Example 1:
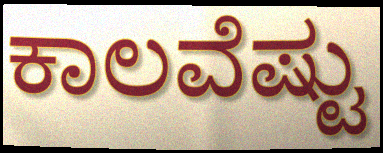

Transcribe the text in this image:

ಕಾಲವೆಷ್ಟು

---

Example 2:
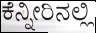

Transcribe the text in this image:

ಕೆನ್ನೀರಿನಲ್ಲಿ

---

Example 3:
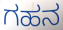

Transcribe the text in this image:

ಗಹನ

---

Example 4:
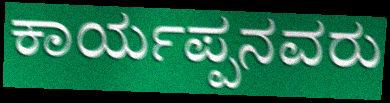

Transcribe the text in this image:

ಕಾರ್ಯಪ್ಪನವರು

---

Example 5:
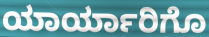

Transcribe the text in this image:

ಯಾರ್ಯಾರಿಗೊ